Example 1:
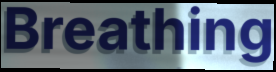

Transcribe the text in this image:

Breathing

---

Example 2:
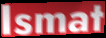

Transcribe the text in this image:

Ismat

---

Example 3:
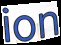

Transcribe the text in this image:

ion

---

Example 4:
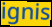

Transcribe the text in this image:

ignis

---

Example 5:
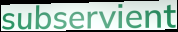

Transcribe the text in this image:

subservient